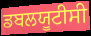
ਡਬਲਯੂਟੀਸੀ